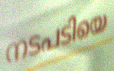
നടപടിയെ